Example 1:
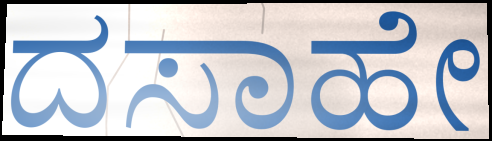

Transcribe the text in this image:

ದಸಾಹೇ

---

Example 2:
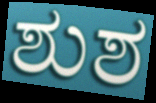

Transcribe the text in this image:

ಶುಶ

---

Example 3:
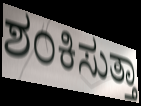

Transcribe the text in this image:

ಶಂಕಿಸುತ್ತಾ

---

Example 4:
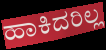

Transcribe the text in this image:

ಹಾಕಿದರಿಲ್ಲ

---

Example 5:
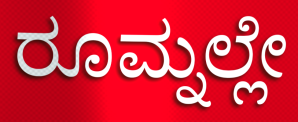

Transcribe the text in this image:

ರೂಮ್ನಲ್ಲೇ